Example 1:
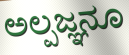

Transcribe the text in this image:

ಅಲ್ಪಜ್ಞನೂ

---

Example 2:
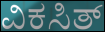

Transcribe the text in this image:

ವಿಕಸಿತ್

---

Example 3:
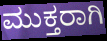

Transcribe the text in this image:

ಮುಕ್ತರಾಗಿ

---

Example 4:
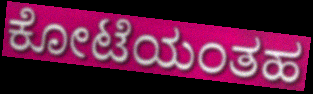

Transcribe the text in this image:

ಕೋಟೆಯಂತಹ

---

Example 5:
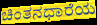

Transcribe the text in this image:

ಚಿಂತನಧಾರೆಯ